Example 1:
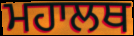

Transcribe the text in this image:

ਮਹਾਲਥ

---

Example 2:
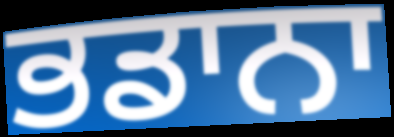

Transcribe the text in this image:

ਭਡਾਨਾ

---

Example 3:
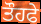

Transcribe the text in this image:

ਤੌਹਫੇ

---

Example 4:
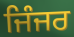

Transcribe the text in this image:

ਜਿੰਜਰ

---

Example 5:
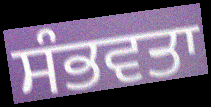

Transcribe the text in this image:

ਸੰਭਵਤਾ